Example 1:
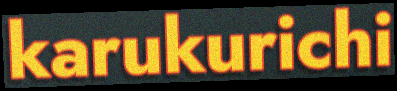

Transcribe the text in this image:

karukurichi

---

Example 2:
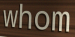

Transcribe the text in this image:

whom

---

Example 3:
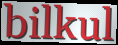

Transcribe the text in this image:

bilkul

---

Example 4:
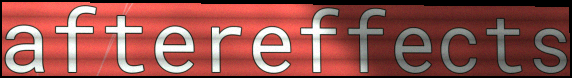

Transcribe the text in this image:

aftereffects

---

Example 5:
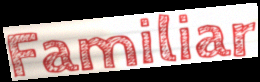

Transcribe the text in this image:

Familiar